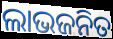
ଲାଭଜନିତ